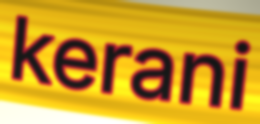
kerani